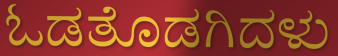
ಓಡತೊಡಗಿದಳು